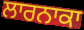
ਲਾਰਨਾਕਾ